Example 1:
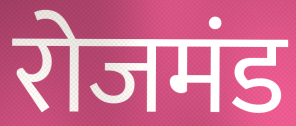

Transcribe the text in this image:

रोजमंड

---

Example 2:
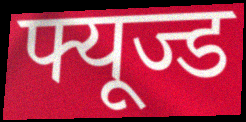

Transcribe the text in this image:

फ्यूज्ड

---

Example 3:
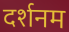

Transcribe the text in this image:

दर्शनम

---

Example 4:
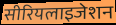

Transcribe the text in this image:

सीरियलाइजेशन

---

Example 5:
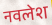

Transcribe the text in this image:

नवलेश